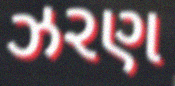
ઝરણ